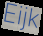
Eijk